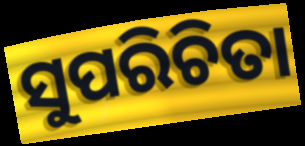
ସୁପରିଚିତା